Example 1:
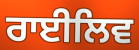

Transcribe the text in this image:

ਰਾਈਲਿਵ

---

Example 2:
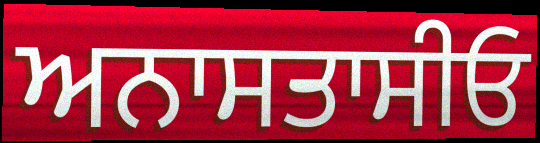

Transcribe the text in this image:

ਅਨਾਸਤਾਸੀਓ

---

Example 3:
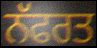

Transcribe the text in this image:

ਨੱਫਰਤ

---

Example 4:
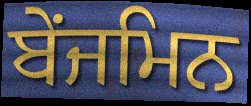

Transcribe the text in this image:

ਬੇਂਜਮਿਨ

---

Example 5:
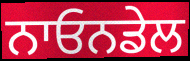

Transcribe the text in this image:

ਨਾਓਨਡੇਲ